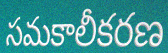
సమకాలీకరణ